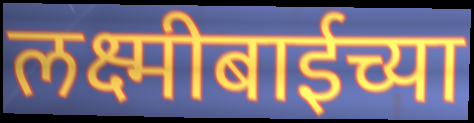
लक्ष्मीबाईच्या